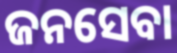
ଜନସେବା